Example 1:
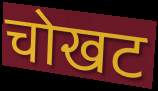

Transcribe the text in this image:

चोखट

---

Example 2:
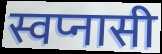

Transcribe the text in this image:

स्वप्नासी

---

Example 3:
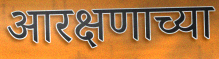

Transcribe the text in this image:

आरक्षणाच्या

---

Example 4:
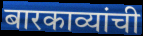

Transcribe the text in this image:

बारकाव्यांची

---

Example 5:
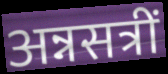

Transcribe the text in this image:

अन्नसत्रीं